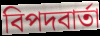
বিপদবার্তা